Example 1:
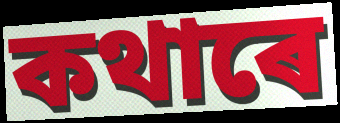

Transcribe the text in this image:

কথাৰে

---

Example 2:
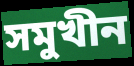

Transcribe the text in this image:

সমুখীন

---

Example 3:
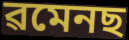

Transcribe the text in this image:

ৱমেনছ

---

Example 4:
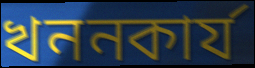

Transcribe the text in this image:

খননকাৰ্য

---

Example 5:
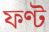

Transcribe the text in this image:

ফণ্ট